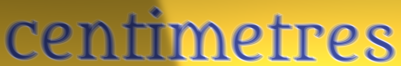
centimetres